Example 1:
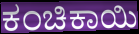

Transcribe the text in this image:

ಕಂಚಿಕಾಯಿ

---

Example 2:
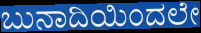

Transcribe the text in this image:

ಬುನಾದಿಯಿಂದಲೇ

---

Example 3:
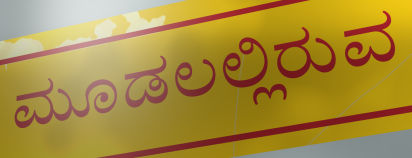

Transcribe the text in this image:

ಮೂಡಲಲ್ಲಿರುವ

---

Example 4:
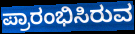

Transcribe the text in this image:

ಪ್ರಾರಂಭಿಸಿರುವ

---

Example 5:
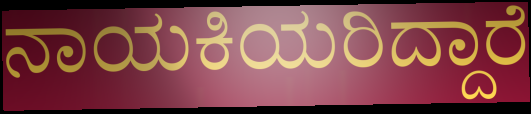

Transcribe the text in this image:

ನಾಯಕಿಯರಿದ್ದಾರೆ